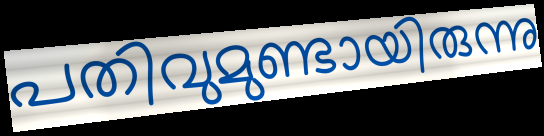
പതിവുമുണ്ടായിരുന്നു